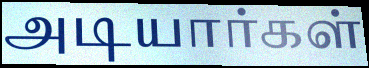
அடியார்கள்